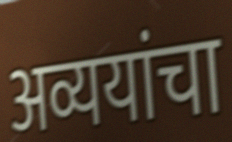
अव्ययांचा